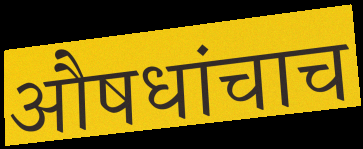
औषधांचाच